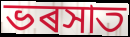
ভৰসাত